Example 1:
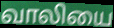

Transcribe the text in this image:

வாலியை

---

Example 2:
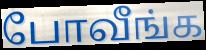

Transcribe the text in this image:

போவீங்க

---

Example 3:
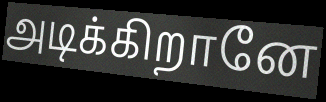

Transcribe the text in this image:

அடிக்கிறானே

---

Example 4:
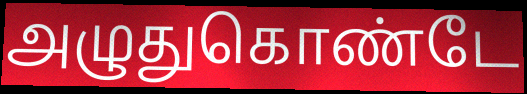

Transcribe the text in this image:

அழுதுகொண்டே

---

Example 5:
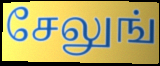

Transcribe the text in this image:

சேலுங்